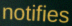
notifies